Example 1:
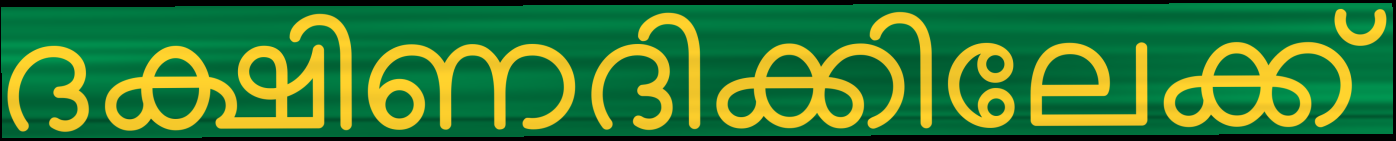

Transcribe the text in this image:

ദക്ഷിണദിക്കിലേക്ക്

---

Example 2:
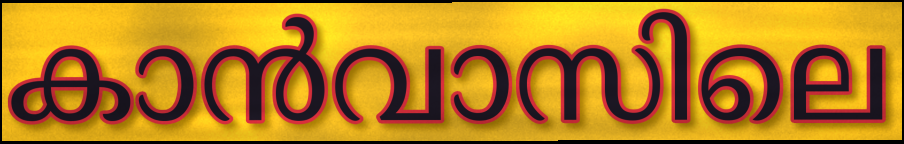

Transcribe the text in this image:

കാൻവാസിലെ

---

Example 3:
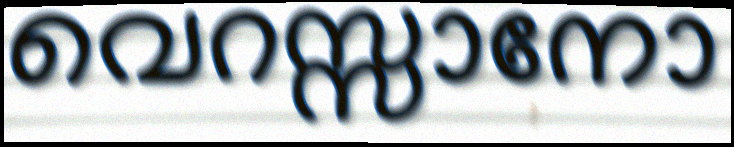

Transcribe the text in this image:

വെറസ്സാനോ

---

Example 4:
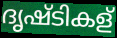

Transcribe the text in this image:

ദൃഷ്ടികള്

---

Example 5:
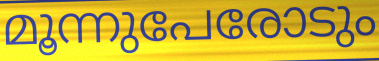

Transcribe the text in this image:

മൂന്നുപേരോടും